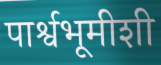
पार्श्वभूमीशी